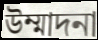
উম্মাদনা